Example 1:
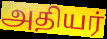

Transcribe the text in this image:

அதியர்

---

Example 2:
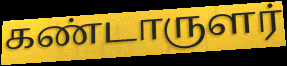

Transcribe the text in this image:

கண்டாருளர்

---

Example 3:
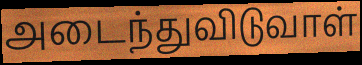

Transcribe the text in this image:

அடைந்துவிடுவாள்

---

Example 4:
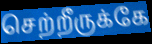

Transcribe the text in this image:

செற்றீருக்கே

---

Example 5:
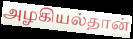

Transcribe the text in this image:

அழகியல்தான்